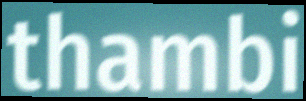
thambi